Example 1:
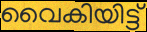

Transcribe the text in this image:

വൈകിയിട്ട്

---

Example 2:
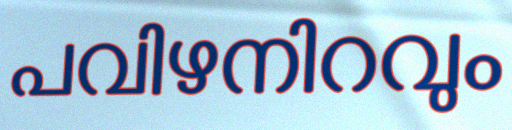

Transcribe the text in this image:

പവിഴനിറവും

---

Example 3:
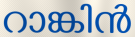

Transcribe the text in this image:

റാങ്കിൻ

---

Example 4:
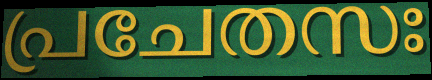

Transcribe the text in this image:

പ്രചേതസഃ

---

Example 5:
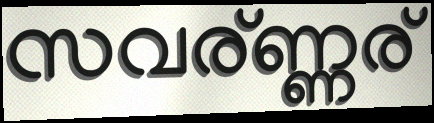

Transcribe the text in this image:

സവര്ണ്ണര്